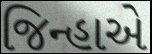
જિન્હાએ